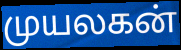
முயலகன்